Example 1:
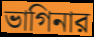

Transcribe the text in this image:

ভাগিনার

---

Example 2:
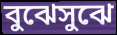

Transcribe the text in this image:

বুঝেসুঝে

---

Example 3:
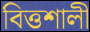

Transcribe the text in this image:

বিত্তশালী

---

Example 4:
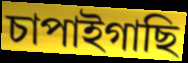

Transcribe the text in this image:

চাপাইগাছি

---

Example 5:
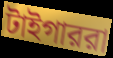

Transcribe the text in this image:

টাইগাররা